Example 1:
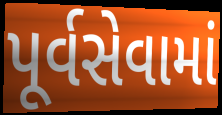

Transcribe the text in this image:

પૂર્વસેવામાં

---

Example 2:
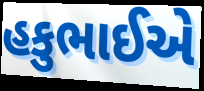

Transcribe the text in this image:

હકુભાઈએ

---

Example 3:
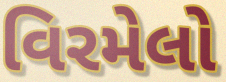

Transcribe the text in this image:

વિરમેલો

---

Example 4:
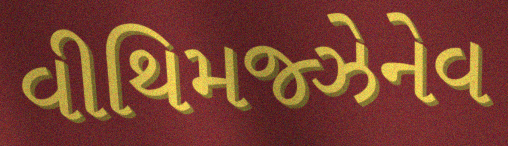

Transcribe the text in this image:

વીથિમજ્ઝેનેવ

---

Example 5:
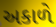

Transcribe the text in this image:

અકાળે